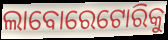
ଲାବୋରେଟୋରିକୁ